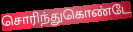
சொரிந்துகொண்டே